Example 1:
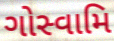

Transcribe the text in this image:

ગોસ્વામિ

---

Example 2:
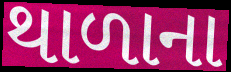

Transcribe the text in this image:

થાળાના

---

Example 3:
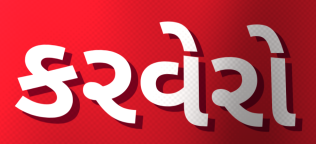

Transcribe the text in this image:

કરવેરો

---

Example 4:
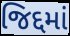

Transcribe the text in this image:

જિદ્દમાં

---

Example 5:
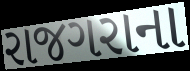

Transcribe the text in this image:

રાજગરાના